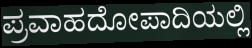
ಪ್ರವಾಹದೋಪಾದಿಯಲ್ಲಿ